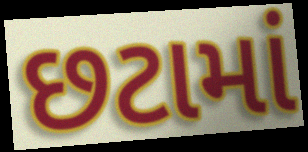
છટામાં